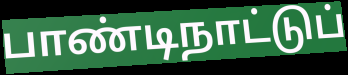
பாண்டிநாட்டுப்